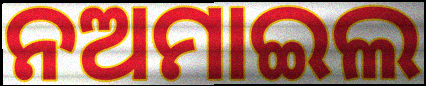
ନଅମାଇଲ